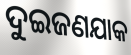
ଦୁଇଜଣଯାକ